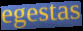
egestas